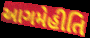
આગમેહીતિ